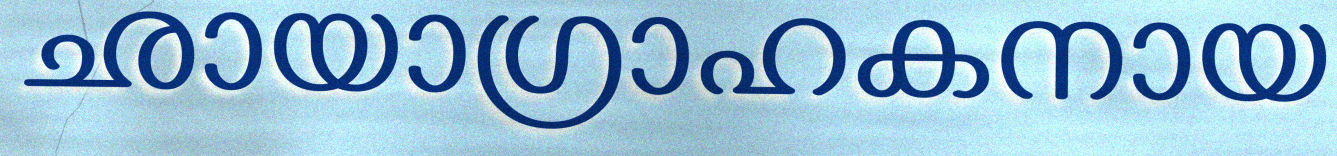
ഛായാഗ്രാഹകനായ